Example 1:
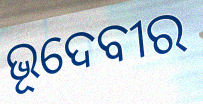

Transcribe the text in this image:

ଭୂଦେବୀର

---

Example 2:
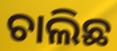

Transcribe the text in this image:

ଚାଲିଛ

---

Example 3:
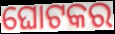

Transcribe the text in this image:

ଘୋଟକର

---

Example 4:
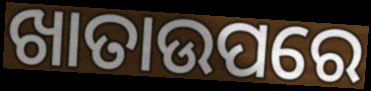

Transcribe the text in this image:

ଖାତାଉପରେ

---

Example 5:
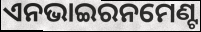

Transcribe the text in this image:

ଏନଭାଇରନମେଣ୍ଟ